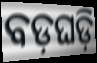
ବଡ଼ଘଡ଼ି